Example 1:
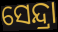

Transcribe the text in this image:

ସେନ୍ଦ୍ରା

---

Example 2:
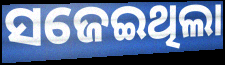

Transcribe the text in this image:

ସଜେଇଥିଲା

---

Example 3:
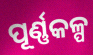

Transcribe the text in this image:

ପୂର୍ଣ୍ଣକଳ୍ପ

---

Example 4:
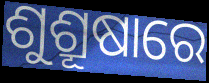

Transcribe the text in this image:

ଶୁଶ୍ରୂଷାରେ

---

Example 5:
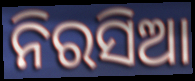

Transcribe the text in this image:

ନିରସିଆ